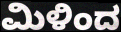
ಮಿಳಿಂದ